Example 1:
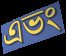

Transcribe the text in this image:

এভং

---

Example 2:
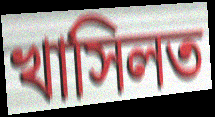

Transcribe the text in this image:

খাসিলত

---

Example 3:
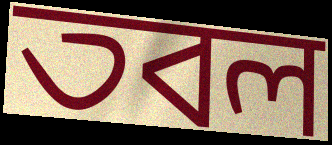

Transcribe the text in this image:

তবল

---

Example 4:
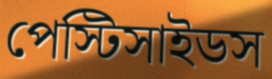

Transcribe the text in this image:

পেস্টিসাইডস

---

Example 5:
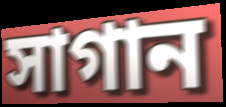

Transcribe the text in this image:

সাগান